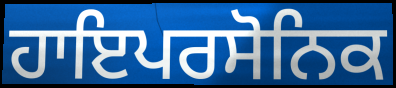
ਹਾਇਪਰਸੋਨਿਕ